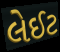
લેઈટ